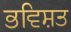
ਭਵਿਸ਼ਤ